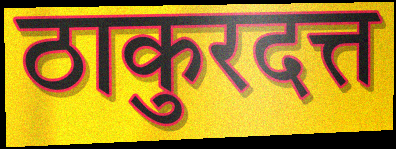
ठाकुरदत्त